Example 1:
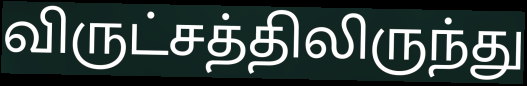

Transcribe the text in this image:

விருட்சத்திலிருந்து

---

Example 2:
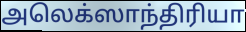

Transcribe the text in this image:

அலெக்ஸாந்திரியா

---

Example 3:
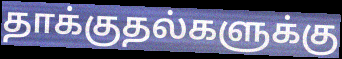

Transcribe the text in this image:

தாக்குதல்களுக்கு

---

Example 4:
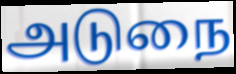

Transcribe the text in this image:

அடுநை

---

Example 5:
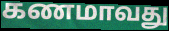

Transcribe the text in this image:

கணமாவது